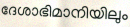
ദേശാഭിമാനിയിലും